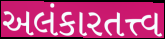
અલંકારતત્ત્વ